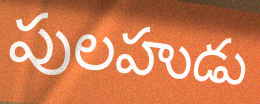
పులహుడు